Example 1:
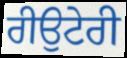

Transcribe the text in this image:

ਰੀਉਟੇਰੀ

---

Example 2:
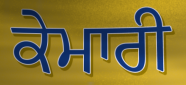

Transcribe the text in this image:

ਕੇਮਾਰੀ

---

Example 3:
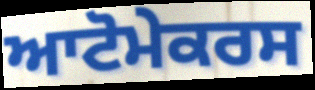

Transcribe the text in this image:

ਆਟੋਮੇਕਰਸ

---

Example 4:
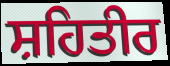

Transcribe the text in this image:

ਸ਼ਹਿਤੀਰ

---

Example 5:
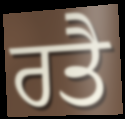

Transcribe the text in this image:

ਰਤੈ